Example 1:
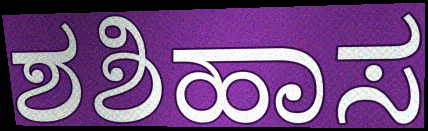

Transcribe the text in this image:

ಶಶಿಹಾಸ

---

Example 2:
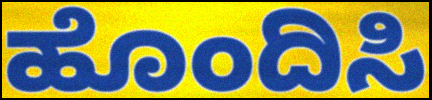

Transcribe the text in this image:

ಹೊಂದಿಸಿ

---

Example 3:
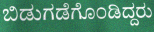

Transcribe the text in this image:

ಬಿಡುಗಡೆಗೊಂಡಿದ್ದರು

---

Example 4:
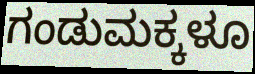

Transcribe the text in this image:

ಗಂಡುಮಕ್ಕಳೂ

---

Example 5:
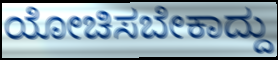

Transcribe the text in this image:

ಯೋಚಿಸಬೇಕಾದ್ದು